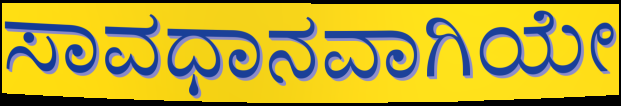
ಸಾವಧಾನವಾಗಿಯೇ